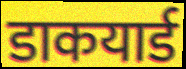
डाकयार्ड